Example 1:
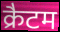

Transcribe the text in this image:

क्रैटम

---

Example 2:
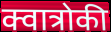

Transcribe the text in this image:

क्वात्रोकी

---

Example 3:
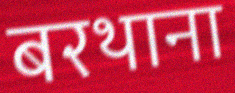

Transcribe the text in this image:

बरथाना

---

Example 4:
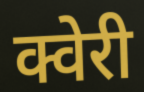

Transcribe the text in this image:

क्वेरी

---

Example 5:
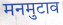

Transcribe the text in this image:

मनमुटाव